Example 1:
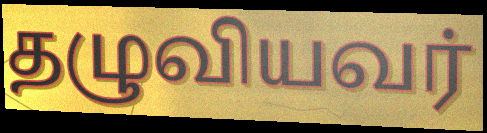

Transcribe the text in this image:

தழுவியவர்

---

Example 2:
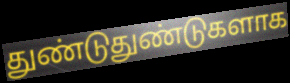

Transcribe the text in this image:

துண்டுதுண்டுகளாக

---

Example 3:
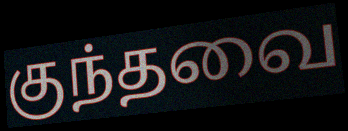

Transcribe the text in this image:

குந்தவை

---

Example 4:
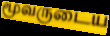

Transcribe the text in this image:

மூவருடைய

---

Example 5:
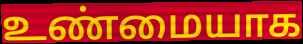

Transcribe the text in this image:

உண்மையாக